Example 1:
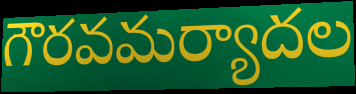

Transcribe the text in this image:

గౌరవమర్యాదల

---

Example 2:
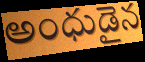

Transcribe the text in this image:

అంధుడైన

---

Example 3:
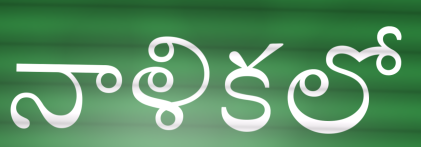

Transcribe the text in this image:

నాళికలో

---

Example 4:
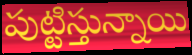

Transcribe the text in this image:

పుట్టిస్తున్నాయి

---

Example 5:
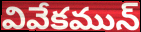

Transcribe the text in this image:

వివేకమున్